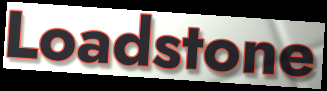
Loadstone